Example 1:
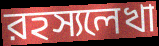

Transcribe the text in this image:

রহস্যলেখা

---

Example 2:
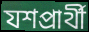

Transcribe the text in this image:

যশপ্রার্থী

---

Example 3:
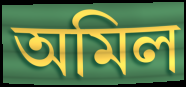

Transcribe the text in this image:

অমিল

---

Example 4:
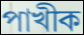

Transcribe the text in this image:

পাখীক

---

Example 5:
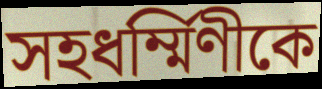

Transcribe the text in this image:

সহধর্ম্মিণীকে